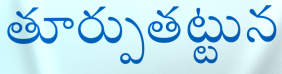
తూర్పుతట్టున